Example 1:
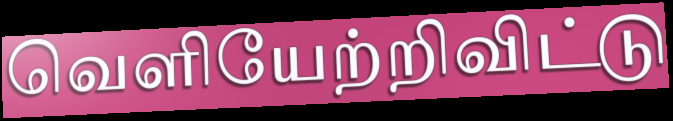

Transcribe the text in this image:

வெளியேற்றிவிட்டு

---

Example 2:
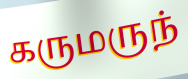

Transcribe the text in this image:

கருமருந்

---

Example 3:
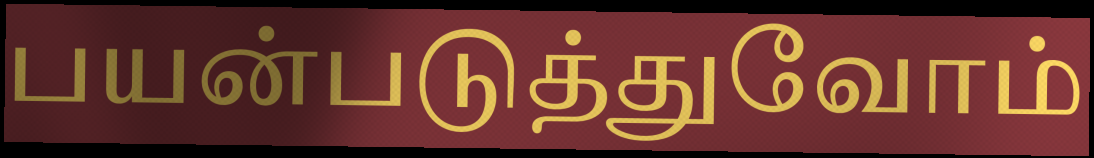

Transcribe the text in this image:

பயன்படுத்துவோம்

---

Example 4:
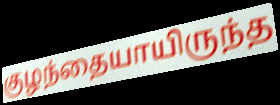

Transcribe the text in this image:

குழந்தையாயிருந்த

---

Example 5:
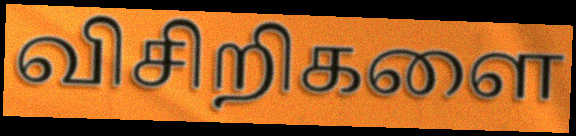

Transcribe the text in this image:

விசிறிகளை